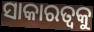
ସାକାରତ୍ଵକୁ